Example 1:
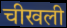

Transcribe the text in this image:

चीखली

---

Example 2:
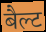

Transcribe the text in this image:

बैल्ट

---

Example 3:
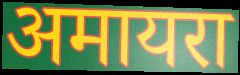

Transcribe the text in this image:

अमायरा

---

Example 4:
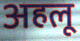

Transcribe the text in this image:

अहलू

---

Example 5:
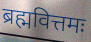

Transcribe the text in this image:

ब्रह्मवित्तमः